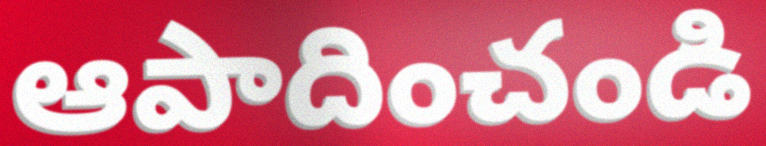
ఆపాదించండి